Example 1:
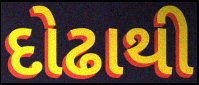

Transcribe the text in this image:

દોઢાથી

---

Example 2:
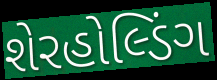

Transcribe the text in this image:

શેરહોલ્ડિંગ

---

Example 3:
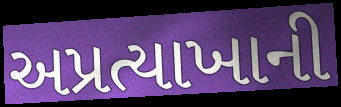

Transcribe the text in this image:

અપ્રત્યાખાની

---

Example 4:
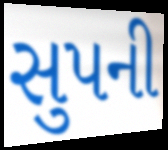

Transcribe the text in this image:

સુપની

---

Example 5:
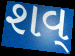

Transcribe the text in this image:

શવ્